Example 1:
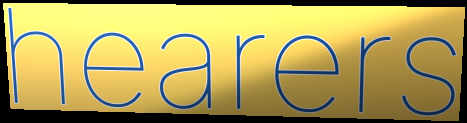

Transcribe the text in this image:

hearers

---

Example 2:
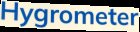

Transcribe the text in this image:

Hygrometer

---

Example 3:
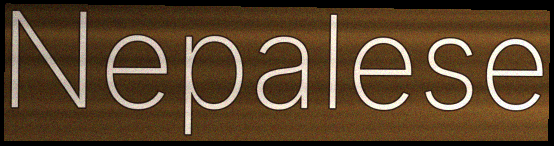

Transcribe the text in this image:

Nepalese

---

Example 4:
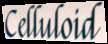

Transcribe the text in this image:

Celluloid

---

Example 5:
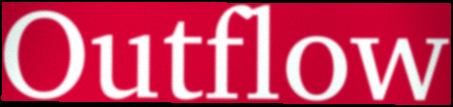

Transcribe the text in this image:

Outflow